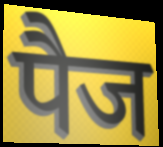
पैज